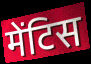
मेंटिस